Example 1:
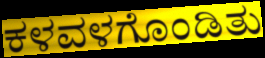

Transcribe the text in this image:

ಕಳವಳಗೊಂಡಿತು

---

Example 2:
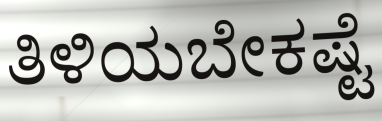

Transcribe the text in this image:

ತಿಳಿಯಬೇಕಷ್ಟೆ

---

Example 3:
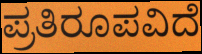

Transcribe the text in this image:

ಪ್ರತಿರೂಪವಿದೆ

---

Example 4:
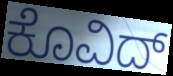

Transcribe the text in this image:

ಕೊವಿದ್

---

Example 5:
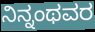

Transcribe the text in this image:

ನಿನ್ನಂಥವರ